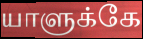
யாளுக்கே